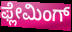
ಫ್ಲೇಮಿಂಗ್